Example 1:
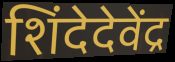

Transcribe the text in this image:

शिंदेदेवेंद्र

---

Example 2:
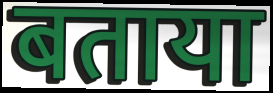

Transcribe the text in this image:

बताया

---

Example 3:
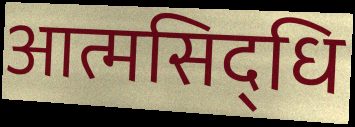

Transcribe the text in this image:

आत्मसिद्धि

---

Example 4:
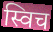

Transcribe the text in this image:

स्विच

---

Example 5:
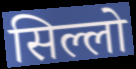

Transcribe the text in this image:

सिल्लो